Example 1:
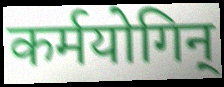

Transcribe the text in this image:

कर्मयोगिन्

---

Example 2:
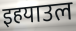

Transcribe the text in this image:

इहयाउल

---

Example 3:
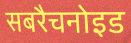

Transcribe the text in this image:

सबरैचनोइड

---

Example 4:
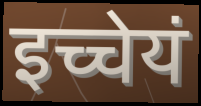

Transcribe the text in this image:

इच्चेयं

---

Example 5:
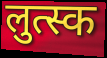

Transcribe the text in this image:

लुत्स्क